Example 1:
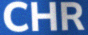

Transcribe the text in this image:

CHR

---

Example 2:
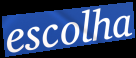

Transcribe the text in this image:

escolha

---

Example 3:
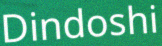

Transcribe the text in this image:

Dindoshi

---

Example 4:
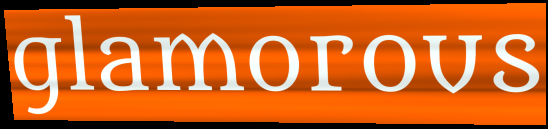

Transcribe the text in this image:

glamorous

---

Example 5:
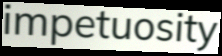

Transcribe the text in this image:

impetuosity